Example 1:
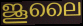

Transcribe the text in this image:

ജൂലൈ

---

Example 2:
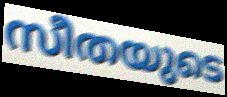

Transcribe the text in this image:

സീതയുടെ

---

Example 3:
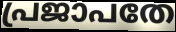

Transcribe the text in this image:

പ്രജാപതേ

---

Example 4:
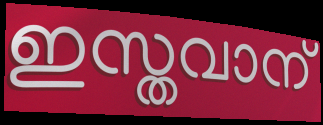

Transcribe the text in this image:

ഇസ്തവാന്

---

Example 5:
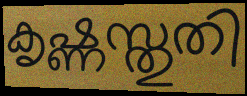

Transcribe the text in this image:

കൃഷ്ണസ്തുതി